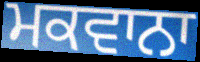
ਮਕਵਾਨਾ